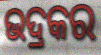
ଭଦ୍ରକର